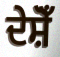
ਦੇਸ਼ੋਁ